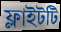
ফ্লাইটটি